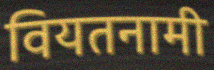
वियतनामी